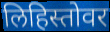
लिहिस्तोवर